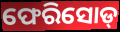
ଫେରିସୋଡ୍